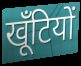
खूँटियों